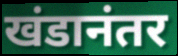
खंडानंतर